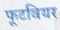
फूटवियर